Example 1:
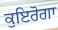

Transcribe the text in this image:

ਕੁਇਰੋਗਾ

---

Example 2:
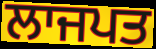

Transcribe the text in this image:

ਲਾਜਪਤ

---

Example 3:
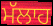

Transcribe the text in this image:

ਮੱਲਾਹ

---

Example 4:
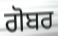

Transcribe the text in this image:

ਗੋਬਰ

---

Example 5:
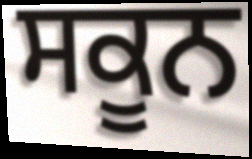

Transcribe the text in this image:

ਸਕੂਨ